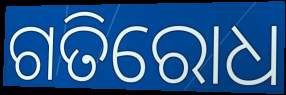
ଗତିରୋଧ